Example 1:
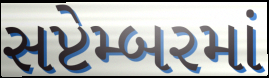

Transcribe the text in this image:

સપ્ટેમ્બરમાં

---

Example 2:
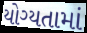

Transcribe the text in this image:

યોગ્યતામાં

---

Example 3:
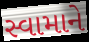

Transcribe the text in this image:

સ્વામાને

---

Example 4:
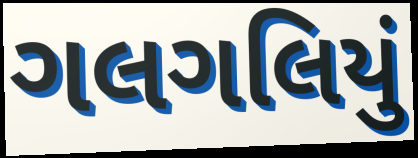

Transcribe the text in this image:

ગલગલિયું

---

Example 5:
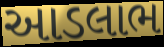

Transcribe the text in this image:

આડલાભ